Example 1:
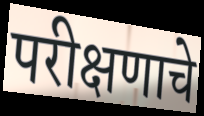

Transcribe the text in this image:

परीक्षणाचे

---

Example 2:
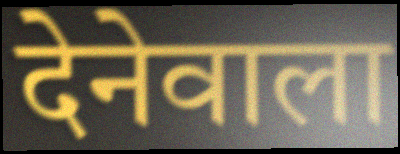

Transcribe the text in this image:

देनेवाला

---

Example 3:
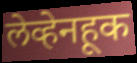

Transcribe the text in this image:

लेव्हेनहूक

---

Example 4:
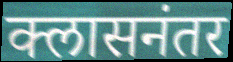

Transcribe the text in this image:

क्लासनंतर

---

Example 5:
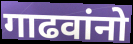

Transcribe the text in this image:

गाढवांनो